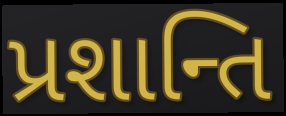
પ્રશાન્તિ